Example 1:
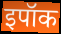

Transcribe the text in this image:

इपॉक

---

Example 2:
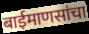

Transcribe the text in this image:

बाईमाणसांचा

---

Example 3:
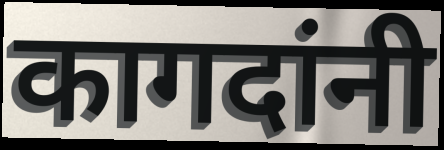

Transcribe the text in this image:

कागदांनी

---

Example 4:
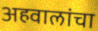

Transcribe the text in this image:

अहवालांचा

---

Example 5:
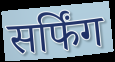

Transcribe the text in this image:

सर्फिंग